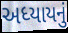
અધ્યાયનું